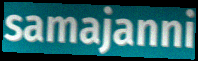
samajanni